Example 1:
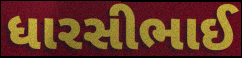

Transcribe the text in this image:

ધારસીભાઈ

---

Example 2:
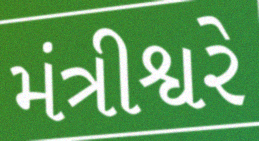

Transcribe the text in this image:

મંત્રીશ્વરે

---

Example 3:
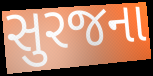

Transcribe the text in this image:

સુરજના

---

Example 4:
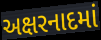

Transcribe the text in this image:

અક્ષરનાદમાં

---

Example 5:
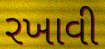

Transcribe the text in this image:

રખાવી